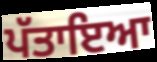
ਪੱਤਾਇਆ